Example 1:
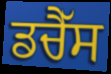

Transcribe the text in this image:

ਡਚੈੱਸ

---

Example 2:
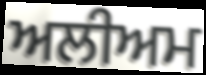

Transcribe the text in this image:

ਅਲੀਅਮ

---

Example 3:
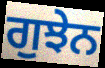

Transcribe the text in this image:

ਗੁਝੇਨ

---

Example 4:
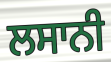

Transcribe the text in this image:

ਲਸਾਨੀ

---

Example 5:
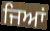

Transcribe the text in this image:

ਜਿਆਂ